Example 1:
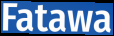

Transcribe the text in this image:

Fatawa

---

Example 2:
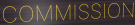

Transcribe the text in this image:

COMMISSION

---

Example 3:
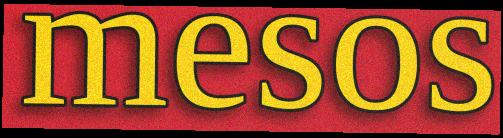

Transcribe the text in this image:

mesos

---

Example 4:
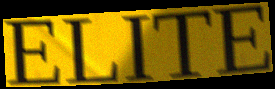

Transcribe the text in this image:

ELITE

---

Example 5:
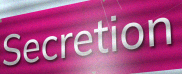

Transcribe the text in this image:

Secretion